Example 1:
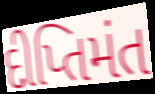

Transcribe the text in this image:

દીપ્તિમંત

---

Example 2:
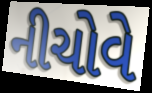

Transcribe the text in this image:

નીચોવે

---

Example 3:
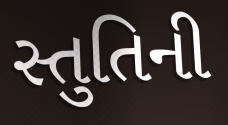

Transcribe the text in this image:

સ્તુતિની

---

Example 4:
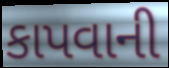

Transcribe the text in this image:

કાપવાની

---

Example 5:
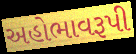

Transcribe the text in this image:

અહોભાવરૂપી